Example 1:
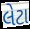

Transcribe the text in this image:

લેટા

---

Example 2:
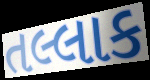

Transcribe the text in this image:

તલ્લાક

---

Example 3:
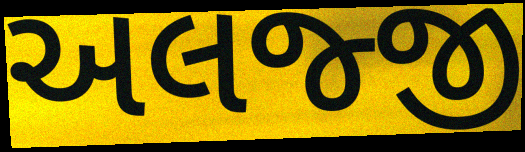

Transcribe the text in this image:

અલજ્જી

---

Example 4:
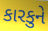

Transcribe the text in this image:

કારકુને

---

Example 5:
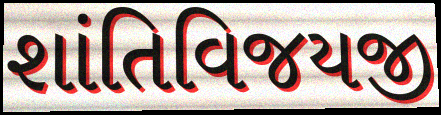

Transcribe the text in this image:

શાંતિવિજયજી